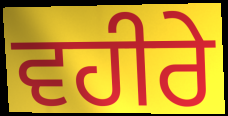
ਵਹੀਰੇ